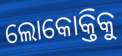
ଲୋକୋକ୍ତିକୁ